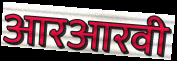
आरआरवी